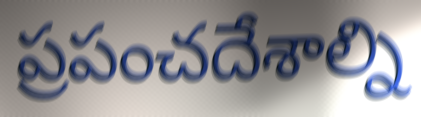
ప్రపంచదేశాల్ని